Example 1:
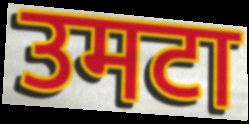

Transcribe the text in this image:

उमटा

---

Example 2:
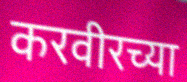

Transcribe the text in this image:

करवीरच्या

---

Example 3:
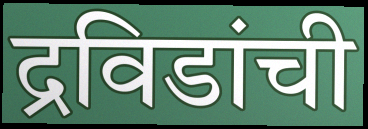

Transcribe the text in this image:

द्रविडांची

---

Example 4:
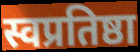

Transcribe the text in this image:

स्वप्रतिष्ठा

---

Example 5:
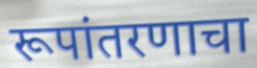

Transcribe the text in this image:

रूपांतरणाचा